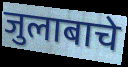
जुलाबाचे